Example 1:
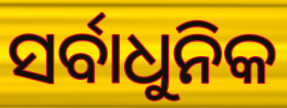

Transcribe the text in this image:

ସର୍ବାଧୁନିକ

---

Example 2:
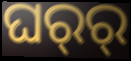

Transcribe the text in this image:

ଘର୍‍ର୍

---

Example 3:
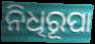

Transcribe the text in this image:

ନିଧିରୂପା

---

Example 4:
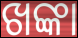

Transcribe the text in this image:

ଖଙ୍କା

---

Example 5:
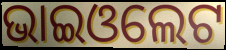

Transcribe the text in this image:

ଭାଇଓଲେଟ